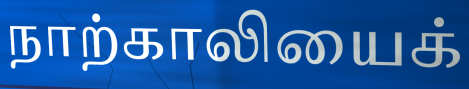
நாற்காலியைக்